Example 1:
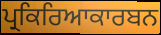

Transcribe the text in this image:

ਪ੍ਰਕਿਰਿਆਕਾਰਬਨ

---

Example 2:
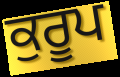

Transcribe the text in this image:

ਕੁਰੂਪ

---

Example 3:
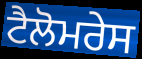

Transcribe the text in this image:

ਟੈਲੋਮਰੇਸ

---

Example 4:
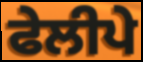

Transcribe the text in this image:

ਫੇਲੀਪੇ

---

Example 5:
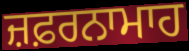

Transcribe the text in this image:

ਜ਼ਫ਼ਰਨਾਮਾਹ